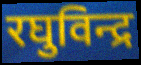
रघुविन्द्र